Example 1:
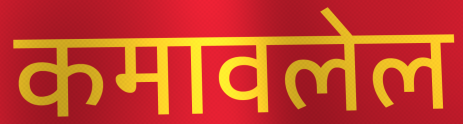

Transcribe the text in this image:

कमावलेल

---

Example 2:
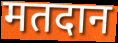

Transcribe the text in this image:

मतदान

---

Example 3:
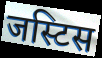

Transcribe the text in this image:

जस्टिस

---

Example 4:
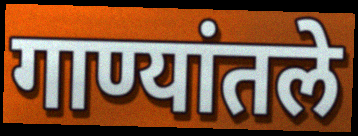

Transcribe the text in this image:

गाण्यांतले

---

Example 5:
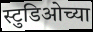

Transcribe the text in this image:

स्टुडिओच्या